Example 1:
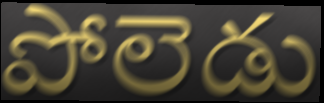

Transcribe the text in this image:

పోలెడు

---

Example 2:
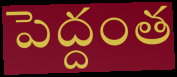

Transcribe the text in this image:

పెద్దంత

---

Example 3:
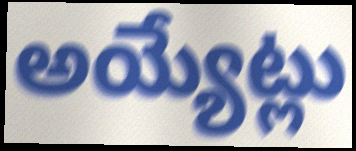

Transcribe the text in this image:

అయ్యేట్లు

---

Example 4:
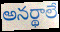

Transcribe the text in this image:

అనర్థాలే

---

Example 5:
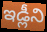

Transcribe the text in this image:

ఇడ్లీని